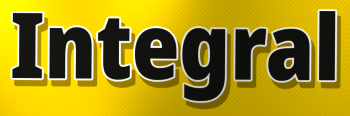
Integral